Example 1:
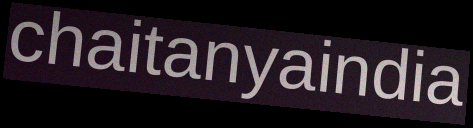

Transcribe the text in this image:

chaitanyaindia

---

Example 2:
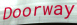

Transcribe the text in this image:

Doorway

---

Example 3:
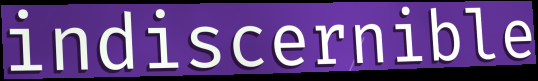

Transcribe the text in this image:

indiscernible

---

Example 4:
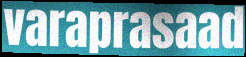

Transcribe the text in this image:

varaprasaad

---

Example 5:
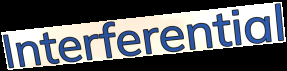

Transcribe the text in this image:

Interferential